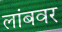
लांबवर